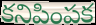
కనిపింపక